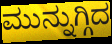
ಮುನ್ನುಗ್ಗಿದ